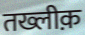
तख्लीक़